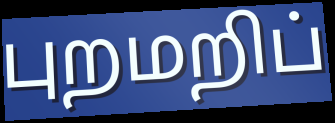
புறமறிப்